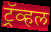
ट्रॅव्हल